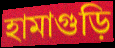
হামাগুড়ি